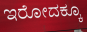
ಇರೋದಕ್ಕೂ